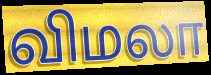
விமலா